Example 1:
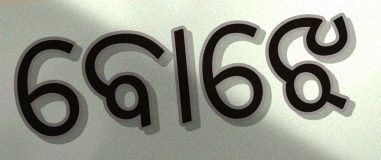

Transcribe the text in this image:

ବୋଝେ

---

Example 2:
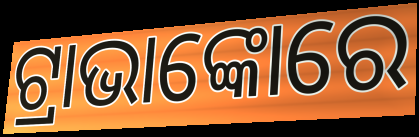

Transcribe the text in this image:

ଟ୍ରାଭାଙ୍କୋରେ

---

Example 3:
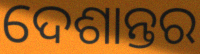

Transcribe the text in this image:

ଦେଶାନ୍ତର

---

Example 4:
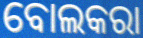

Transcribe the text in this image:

ବୋଲକରା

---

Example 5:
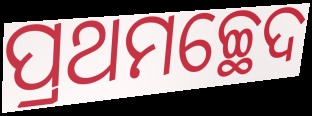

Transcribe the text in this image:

ପ୍ରଥମଚ୍ଛେଦ